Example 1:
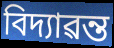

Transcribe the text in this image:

বিদ্যাৱন্ত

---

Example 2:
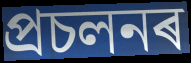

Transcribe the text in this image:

প্ৰচলনৰ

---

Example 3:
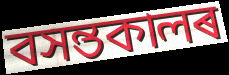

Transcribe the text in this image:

বসন্তকালৰ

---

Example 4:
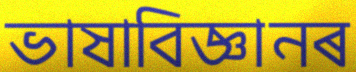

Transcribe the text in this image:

ভাষাবিজ্ঞানৰ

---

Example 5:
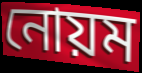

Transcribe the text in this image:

নোয়ম